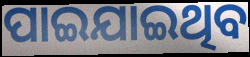
ପାଇଯାଇଥିବ